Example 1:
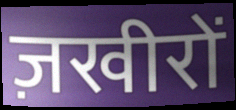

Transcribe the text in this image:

ज़खीरों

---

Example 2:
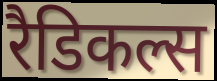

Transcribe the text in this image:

रैडिकल्स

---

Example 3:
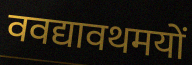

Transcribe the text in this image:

ववद्यावथमयों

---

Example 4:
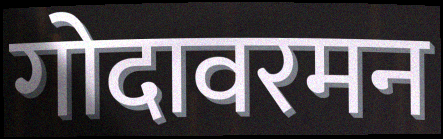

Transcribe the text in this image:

गोदावरमन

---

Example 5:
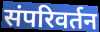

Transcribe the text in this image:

संपरिवर्तन